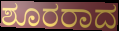
ಶೂರರಾದ